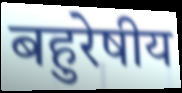
बहुरेषीय